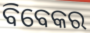
ବିବେକର